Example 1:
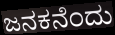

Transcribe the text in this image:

ಜನಕನೆಂದು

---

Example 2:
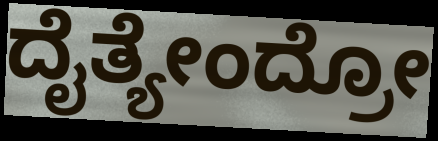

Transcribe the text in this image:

ದೈತ್ಯೇಂದ್ರೋ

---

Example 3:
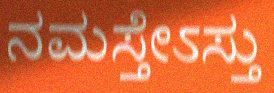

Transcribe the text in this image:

ನಮಸ್ತೇಽಸ್ತು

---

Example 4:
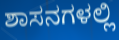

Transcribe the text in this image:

ಶಾಸನಗಳಲ್ಲಿ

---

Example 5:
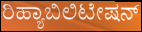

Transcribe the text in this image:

ರಿಹ್ಯಾಬಿಲಿಟೇಷನ್